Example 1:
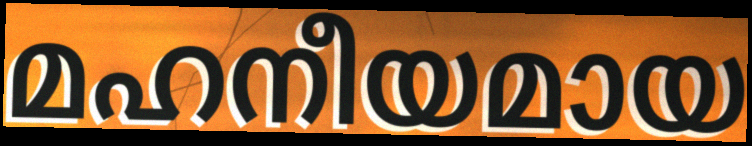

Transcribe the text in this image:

മഹനീയമായ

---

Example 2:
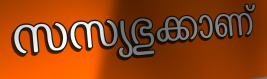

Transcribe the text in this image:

സസ്യഭുക്കാണ്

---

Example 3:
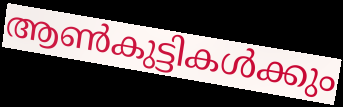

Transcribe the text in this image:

ആൺകുട്ടികൾക്കും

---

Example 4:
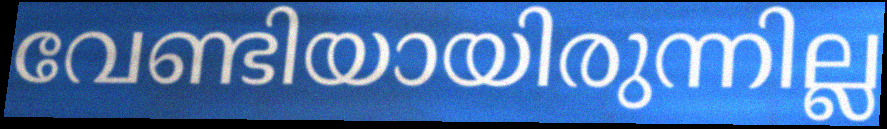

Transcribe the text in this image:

വേണ്ടിയായിരുന്നില്ല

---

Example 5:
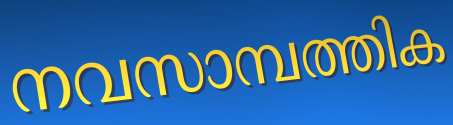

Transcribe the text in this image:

നവസാമ്പത്തിക